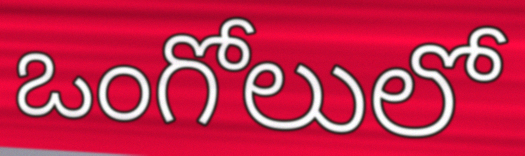
ఒంగోలులో